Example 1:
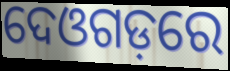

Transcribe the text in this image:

ଦେଓଗଡ଼ରେ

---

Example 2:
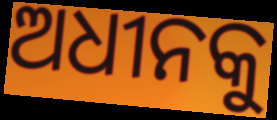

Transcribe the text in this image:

ଅଧୀନକୁ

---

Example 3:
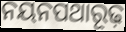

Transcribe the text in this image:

ନୟନପଥାରୂଢ଼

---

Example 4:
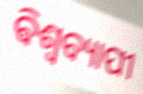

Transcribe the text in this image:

ଵିଶ୍ୱବ୍ୟାପୀ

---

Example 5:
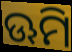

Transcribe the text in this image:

ଊମି